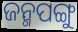
ଜନ୍ମପଙ୍ଗୁ